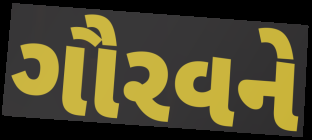
ગૌરવને